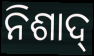
ନିଶାଦ୍